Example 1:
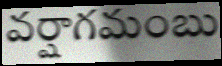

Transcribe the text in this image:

వర్షాగమంబు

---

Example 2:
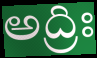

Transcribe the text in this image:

అద్రిః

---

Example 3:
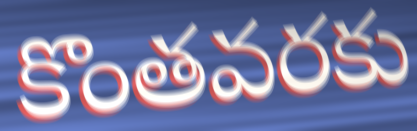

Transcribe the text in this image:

కొంతవరకు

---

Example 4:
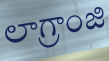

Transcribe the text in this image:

లాగ్రాంజి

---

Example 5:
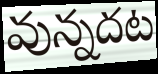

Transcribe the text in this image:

వున్నదట